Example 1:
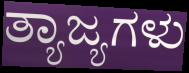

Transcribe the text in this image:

ತ್ಯಾಜ್ಯಗಳು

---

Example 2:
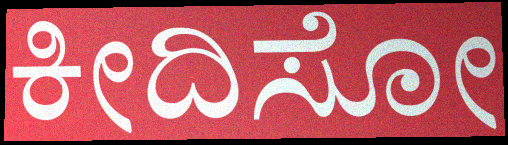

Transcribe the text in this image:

ಕೀದಿಸೋ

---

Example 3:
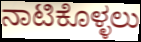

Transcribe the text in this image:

ನಾಟಿಕೊಳ್ಳಲು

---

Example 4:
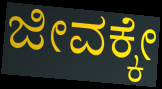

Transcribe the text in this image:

ಜೀವಕ್ಕೇ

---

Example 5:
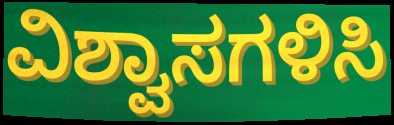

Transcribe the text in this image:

ವಿಶ್ವಾಸಗಳಿಸಿ